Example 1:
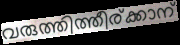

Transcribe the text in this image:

വരുത്തിത്തീര്ക്കാന്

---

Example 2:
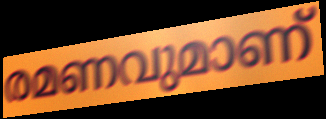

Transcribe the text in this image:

രമണവുമാണ്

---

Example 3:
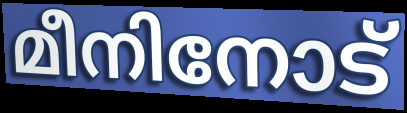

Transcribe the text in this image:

മീനിനോട്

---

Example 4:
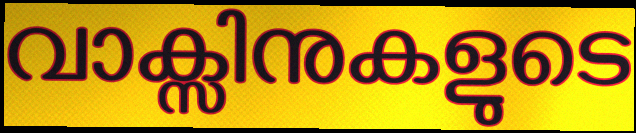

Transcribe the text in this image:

വാക്സിനുകളുടെ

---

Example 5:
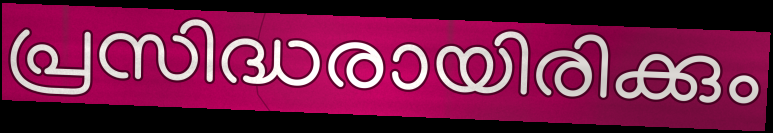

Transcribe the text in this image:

പ്രസിദ്ധരായിരിക്കും